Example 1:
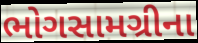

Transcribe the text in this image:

ભોગસામગ્રીના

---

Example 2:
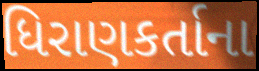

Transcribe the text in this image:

ધિરાણકર્તાના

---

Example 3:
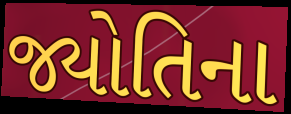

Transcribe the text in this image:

જ્યોતિના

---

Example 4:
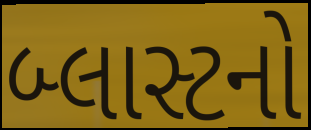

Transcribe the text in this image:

બ્લાસ્ટનો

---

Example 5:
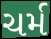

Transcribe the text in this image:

ચર્મ